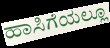
ಹಾಸಿಗೆಯಲ್ಲೂ